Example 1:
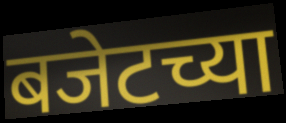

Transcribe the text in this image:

बजेटच्या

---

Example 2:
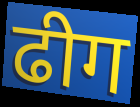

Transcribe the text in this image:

ढीग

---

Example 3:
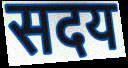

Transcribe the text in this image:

सदय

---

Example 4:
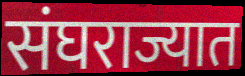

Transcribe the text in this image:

संघराज्यात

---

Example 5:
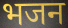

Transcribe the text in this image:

भजन